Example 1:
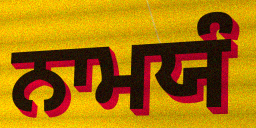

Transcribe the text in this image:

ਨਾਮਯੰ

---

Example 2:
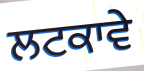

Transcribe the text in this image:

ਲਟਕਾਵੇ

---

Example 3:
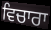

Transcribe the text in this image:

ਵਿਚਾਰਾ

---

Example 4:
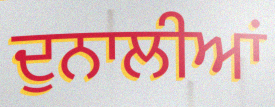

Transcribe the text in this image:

ਦੁਨਾਲੀਆਂ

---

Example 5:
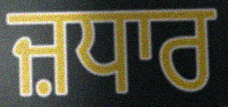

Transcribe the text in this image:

ਜ਼ਧਾਰ